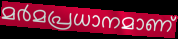
മർമപ്രധാനമാണ്